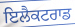
ਇਲੈਕਟਰਾਡ